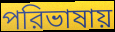
পরিভাষায়